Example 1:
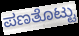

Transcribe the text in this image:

ಪಣತೊಟ್ಟು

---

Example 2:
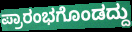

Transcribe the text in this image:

ಪ್ರಾರಂಭಗೊಂಡದ್ದು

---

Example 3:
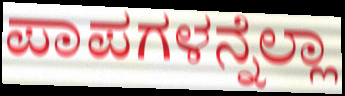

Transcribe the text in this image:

ಪಾಪಗಳನ್ನೆಲ್ಲಾ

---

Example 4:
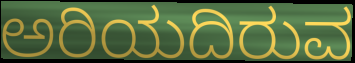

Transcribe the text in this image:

ಅರಿಯದಿರುವ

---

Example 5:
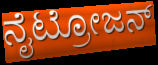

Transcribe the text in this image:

ನೈಟ್ರೋಜನ್